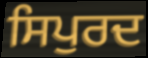
ਸਿਪੁਰਦ